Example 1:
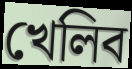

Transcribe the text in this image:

খেলিব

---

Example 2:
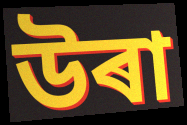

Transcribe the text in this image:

উৰা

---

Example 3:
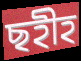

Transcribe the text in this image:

ছহীহ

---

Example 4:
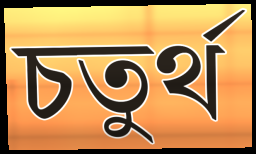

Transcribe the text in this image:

চতুৰ্থ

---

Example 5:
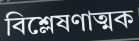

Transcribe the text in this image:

বিশ্লেষণাত্মক